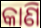
କାଣି